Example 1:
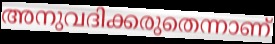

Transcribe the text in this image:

അനുവദിക്കരുതെന്നാണ്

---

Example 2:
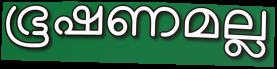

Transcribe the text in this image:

ഭൂഷണമല്ല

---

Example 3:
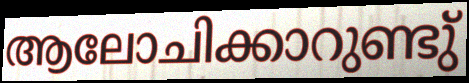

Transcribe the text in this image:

ആലോചിക്കാറുണ്ടു്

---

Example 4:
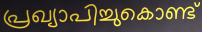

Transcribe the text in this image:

പ്രഖ്യാപിച്ചുകൊണ്ട്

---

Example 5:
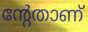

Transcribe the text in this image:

ന്റേതാണ്